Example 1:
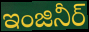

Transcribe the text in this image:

ఇంజినీర్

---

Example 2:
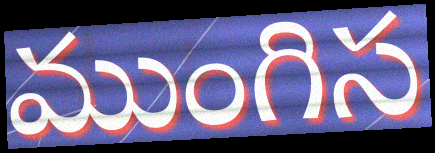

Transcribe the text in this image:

ముంగిస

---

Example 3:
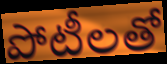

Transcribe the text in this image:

పోటీలతో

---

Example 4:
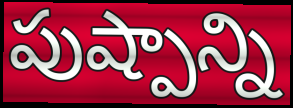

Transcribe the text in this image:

పుష్పాన్ని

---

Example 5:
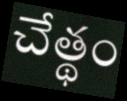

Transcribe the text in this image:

చేత్థం